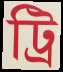
ট্রি